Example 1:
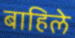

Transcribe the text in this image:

बाहिले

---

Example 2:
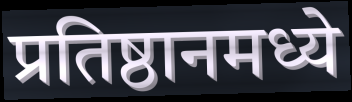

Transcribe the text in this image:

प्रतिष्ठानमध्ये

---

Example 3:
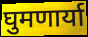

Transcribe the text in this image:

घुमणार्या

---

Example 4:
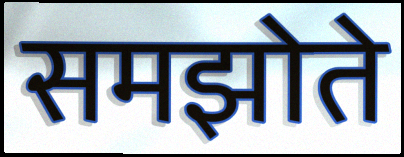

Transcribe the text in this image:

समझोते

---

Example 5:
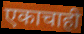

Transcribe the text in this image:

एकाचाही